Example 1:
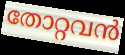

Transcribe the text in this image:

തോറ്റവൻ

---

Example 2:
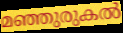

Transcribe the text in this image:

മഞ്ഞുരുകൽ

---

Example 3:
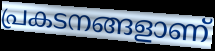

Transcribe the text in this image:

പ്രകടനങ്ങളാണ്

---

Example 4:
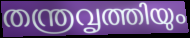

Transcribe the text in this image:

തന്ത്രവൃത്തിയും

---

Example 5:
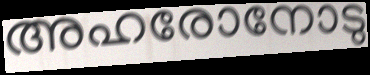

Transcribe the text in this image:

അഹരോനോടു